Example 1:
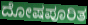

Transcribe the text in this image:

ದೋಷಪೂರಿತ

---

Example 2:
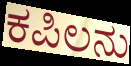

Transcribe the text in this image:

ಕಪಿಲನು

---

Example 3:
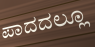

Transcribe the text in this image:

ಪಾದದಲ್ಲೂ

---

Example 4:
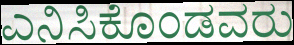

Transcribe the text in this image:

ಎನಿಸಿಕೊಂಡವರು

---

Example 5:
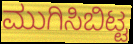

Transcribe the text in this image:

ಮುಗಿಸಿಬಿಟ್ಟ